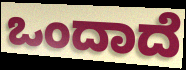
ಒಂದಾದೆ